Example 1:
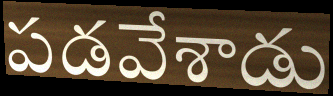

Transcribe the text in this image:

పడవేశాడు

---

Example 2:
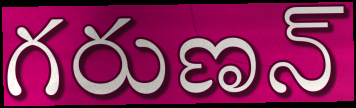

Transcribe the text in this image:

గరుణన్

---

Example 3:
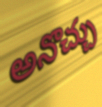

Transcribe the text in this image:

అనొచ్చు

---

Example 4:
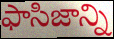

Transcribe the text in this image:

ఫాసిజాన్ని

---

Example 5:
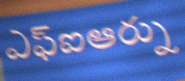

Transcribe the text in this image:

ఎఫ్ఐఆర్ను